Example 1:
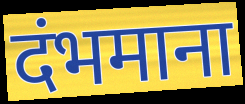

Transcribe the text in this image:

दंभमाना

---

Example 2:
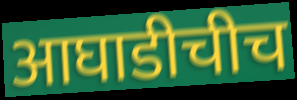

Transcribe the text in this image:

आघाडीचीच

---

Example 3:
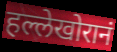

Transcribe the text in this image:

हल्लेखोरानं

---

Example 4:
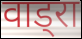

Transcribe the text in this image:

वाड्रा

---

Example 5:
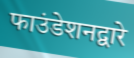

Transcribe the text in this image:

फाउंडेशनद्वारे